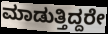
ಮಾಡುತ್ತಿದ್ದರೇ